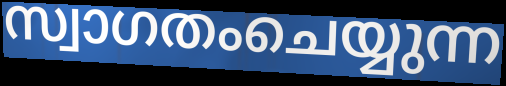
സ്വാഗതംചെയ്യുന്ന